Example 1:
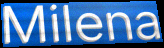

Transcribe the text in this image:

Milena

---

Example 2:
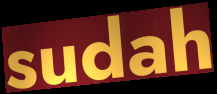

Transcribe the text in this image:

sudah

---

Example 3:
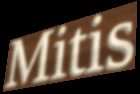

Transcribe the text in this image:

Mitis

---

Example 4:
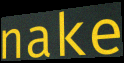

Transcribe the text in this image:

nake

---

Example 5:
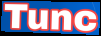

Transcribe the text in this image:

Tunc